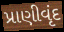
પ્રાણીવૃંદ